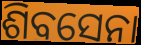
ଶିବସେନା